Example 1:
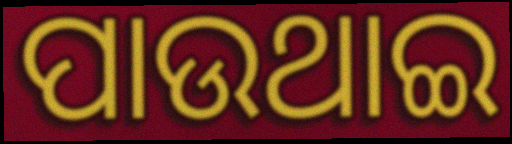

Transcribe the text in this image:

ପାଉଥାଇ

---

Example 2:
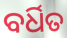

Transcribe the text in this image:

ବର୍ଧିତ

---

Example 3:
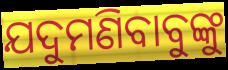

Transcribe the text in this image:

ଯଦୁମଣିବାବୁଙ୍କୁ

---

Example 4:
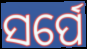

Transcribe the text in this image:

ସର୍ପେ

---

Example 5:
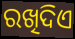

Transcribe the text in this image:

ରଖିଦିଏ